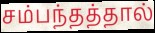
சம்பந்தத்தால்